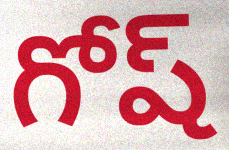
గోష్